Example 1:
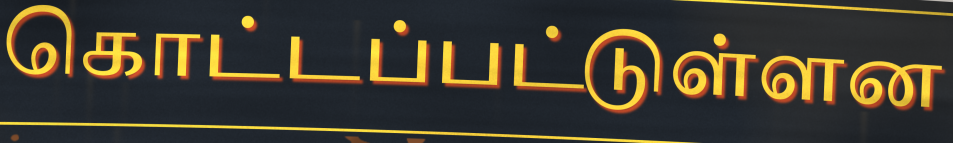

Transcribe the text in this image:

கொட்டப்பட்டுள்ளன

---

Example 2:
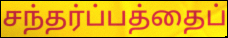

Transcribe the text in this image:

சந்தர்ப்பத்தைப்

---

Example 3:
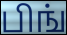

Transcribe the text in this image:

பிங்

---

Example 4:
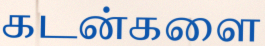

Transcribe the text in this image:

கடன்களை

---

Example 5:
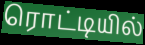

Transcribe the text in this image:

ரொட்டியில்